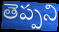
తెప్పని